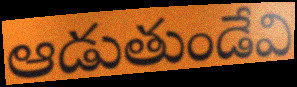
ఆడుతుండేవి